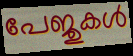
പേജുകൾ